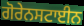
ਗੋਰੇਨਸਟਾਈਨ